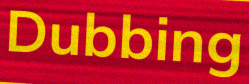
Dubbing